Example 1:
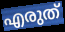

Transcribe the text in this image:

എരുത്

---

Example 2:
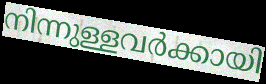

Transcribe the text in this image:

നിന്നുള്ളവർക്കായി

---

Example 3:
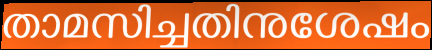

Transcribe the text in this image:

താമസിച്ചതിനുശേഷം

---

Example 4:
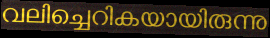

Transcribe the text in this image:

വലിച്ചെറികയായിരുന്നു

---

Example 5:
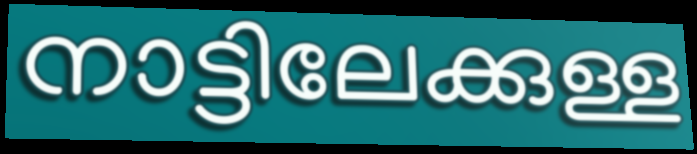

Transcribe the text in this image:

നാട്ടിലേക്കുള്ള